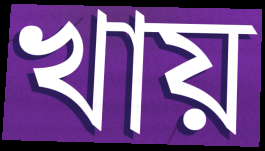
খায়